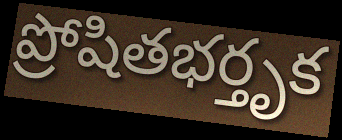
ప్రోషితభర్తృక